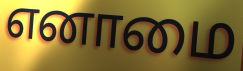
எனாமை